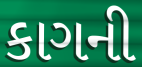
કાગની